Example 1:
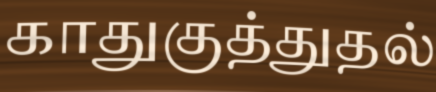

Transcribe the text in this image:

காதுகுத்துதல்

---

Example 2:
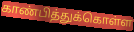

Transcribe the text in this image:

காண்பித்துக்கொள்ள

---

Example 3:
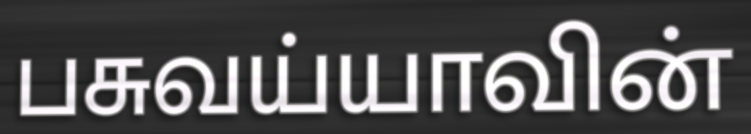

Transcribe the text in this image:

பசுவய்யாவின்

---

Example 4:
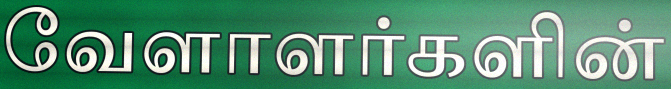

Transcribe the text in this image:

வேளாளர்களின்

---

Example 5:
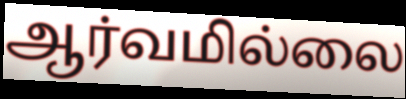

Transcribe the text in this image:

ஆர்வமில்லை